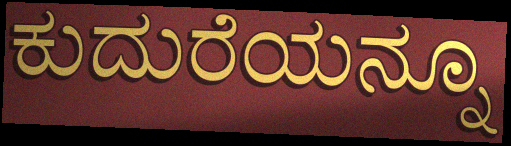
ಕುದುರೆಯನ್ನೂ